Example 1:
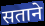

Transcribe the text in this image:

सताने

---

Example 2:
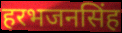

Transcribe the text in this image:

हरभजनसिंह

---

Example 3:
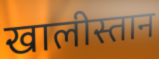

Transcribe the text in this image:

खालीस्तान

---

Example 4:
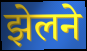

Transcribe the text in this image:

झेलने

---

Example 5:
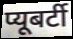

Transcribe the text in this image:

प्यूबर्टी